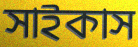
সাইকাস